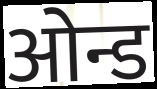
ओन्ड